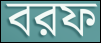
বরফ